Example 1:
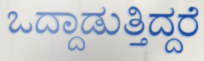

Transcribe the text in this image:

ಒದ್ದಾಡುತ್ತಿದ್ದರೆ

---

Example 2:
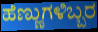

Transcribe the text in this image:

ಹೆಣ್ಣುಗಳಿಬ್ಬರ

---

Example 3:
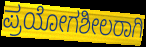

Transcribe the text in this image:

ಪ್ರಯೋಗಶೀಲರಾಗಿ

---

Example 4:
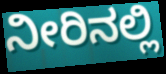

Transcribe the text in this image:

ನೀರಿನಲ್ಲಿ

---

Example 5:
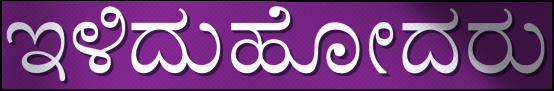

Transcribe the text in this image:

ಇಳಿದುಹೋದರು